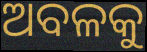
ଅବଳକୁ